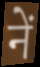
नें